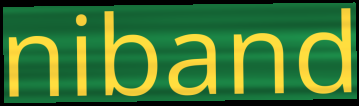
niband